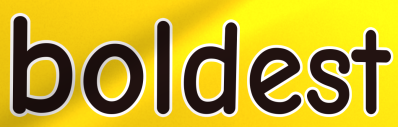
boldest